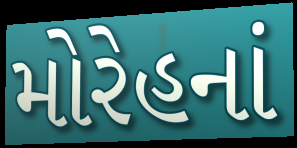
મોરેહનાં